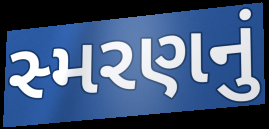
સ્મરણનું